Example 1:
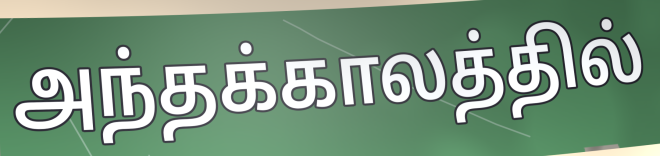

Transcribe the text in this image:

அந்தக்காலத்தில்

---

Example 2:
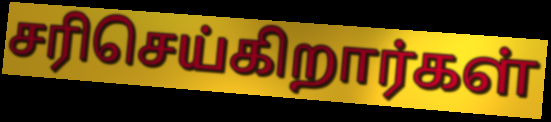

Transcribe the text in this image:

சரிசெய்கிறார்கள்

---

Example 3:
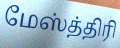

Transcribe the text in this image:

மேஸ்த்திரி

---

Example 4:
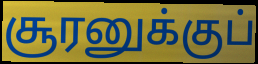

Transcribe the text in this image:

சூரனுக்குப்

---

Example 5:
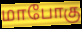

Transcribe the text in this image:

மாபோகு